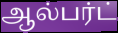
ஆல்பர்ட்